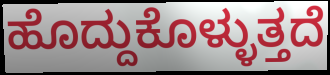
ಹೊದ್ದುಕೊಳ್ಳುತ್ತದೆ